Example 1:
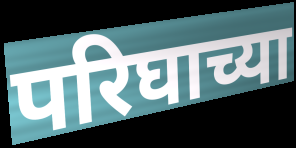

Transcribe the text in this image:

परिघाच्या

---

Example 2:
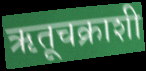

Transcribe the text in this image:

ऋतूचक्राशी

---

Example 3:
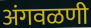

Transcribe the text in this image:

अंगवळणी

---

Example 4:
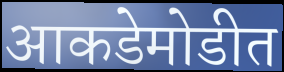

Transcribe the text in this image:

आकडेमोडीत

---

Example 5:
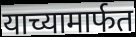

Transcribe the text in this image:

याच्यामार्फत